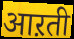
आऱती